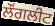
ਲੌਂਗਲੀਟ